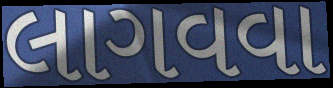
લાગવવા